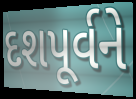
દશપૂર્વને